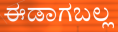
ಈಡಾಗಬಲ್ಲ